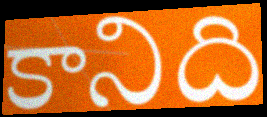
కానిది